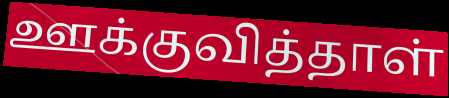
ஊக்குவித்தாள்